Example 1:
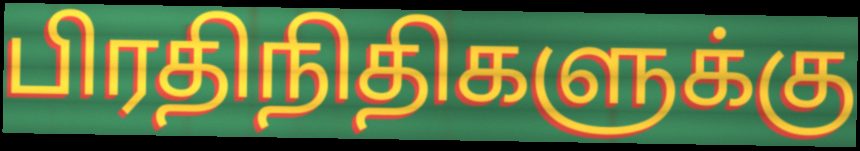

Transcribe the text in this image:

பிரதிநிதிகளுக்கு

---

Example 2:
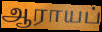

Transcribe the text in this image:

ஆராயப்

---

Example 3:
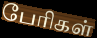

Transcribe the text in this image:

பேரிகள்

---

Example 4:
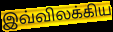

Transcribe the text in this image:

இவ்விலக்கிய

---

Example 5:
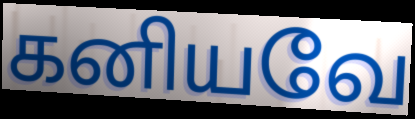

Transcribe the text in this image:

கனியவே